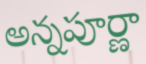
అన్నపూర్ణా